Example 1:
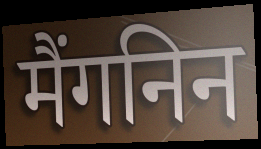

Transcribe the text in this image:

मैंगनिन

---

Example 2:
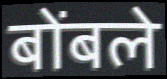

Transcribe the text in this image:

बोंबले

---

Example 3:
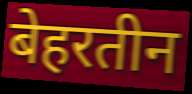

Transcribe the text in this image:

बेहरतीन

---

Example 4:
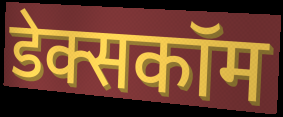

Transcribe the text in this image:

डेक्सकॉम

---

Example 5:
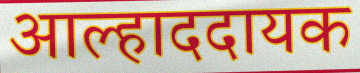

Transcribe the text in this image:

आल्हाददायक